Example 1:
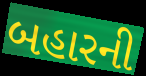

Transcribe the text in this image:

બહારની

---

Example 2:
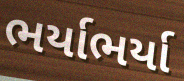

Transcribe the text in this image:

ભર્યાભર્યા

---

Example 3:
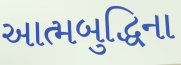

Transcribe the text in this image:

આત્મબુદ્ધિના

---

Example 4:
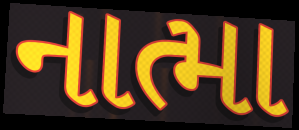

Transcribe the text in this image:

નાત્મા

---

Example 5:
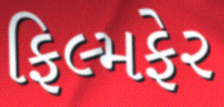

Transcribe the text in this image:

ફિલ્મફેર